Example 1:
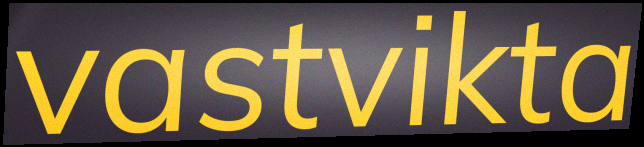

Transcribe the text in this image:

vastvikta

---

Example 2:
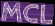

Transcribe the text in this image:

MCL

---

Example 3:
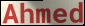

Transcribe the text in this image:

Ahmed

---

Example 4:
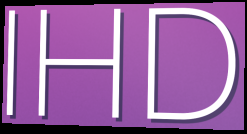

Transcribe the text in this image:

IHD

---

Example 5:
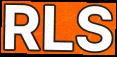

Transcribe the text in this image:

RLS